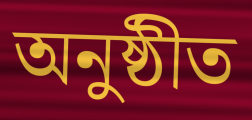
অনুষ্ঠীত